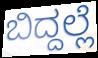
ಬಿದ್ದಲ್ಲೆ